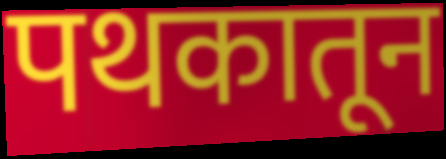
पथकातून